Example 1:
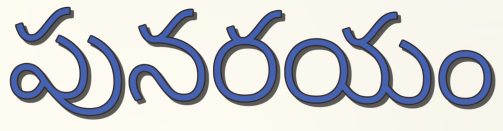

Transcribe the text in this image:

పునరయం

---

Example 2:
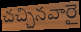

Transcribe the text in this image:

చచ్చినవారై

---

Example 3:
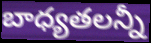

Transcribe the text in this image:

బాధ్యతలన్నీ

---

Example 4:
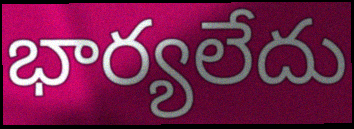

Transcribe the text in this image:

భార్యలేదు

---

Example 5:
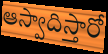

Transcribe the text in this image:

ఆస్వాదిస్తారో